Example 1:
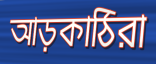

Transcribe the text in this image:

আড়কাঠিরা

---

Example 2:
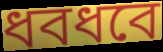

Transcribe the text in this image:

ধবধবে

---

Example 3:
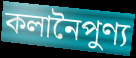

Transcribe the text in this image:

কলানৈপুণ্য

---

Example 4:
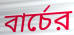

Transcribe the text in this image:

বার্চের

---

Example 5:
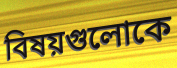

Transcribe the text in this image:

বিষয়গুলোকে